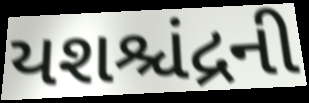
યશશ્ચંદ્રની